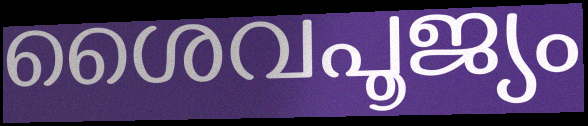
ശൈവപൂജ്യം